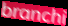
branchi